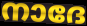
നാദേ